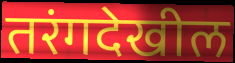
तरंगदेखील